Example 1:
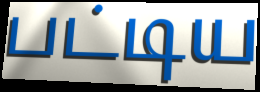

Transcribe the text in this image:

பட்டிய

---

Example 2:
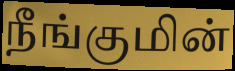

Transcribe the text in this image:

நீங்குமின்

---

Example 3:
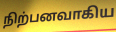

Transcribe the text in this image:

நிற்பனவாகிய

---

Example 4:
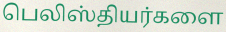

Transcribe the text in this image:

பெலிஸ்தியர்களை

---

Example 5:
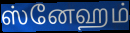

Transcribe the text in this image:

ஸ்னேஹம்